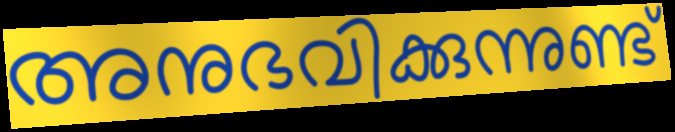
അനുഭവിക്കുന്നുണ്ട്